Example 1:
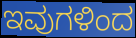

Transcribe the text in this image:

ಇವುಗಳಿಂದ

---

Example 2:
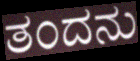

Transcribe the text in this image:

ತಂದನು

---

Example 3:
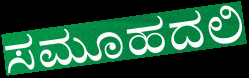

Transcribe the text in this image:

ಸಮೂಹದಲಿ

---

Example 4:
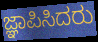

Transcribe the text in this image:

ಜ್ಞಾಪಿಸಿದರು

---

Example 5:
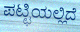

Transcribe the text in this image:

ಪಟ್ಟಿಯಲ್ಲಿದೆ